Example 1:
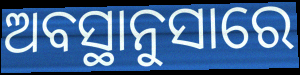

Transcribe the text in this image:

ଅବସ୍ଥାନୁସାରେ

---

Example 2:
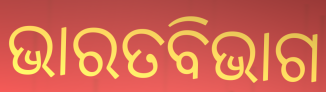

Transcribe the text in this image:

ଭାରତବିଭାଗ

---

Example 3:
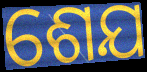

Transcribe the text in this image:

ଶେଯ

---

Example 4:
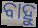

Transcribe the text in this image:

ବାହୁ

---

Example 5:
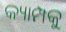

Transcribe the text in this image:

କ୍ୟାମ୍ପକୁ